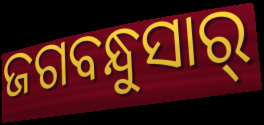
ଜଗବନ୍ଧୁସାର୍